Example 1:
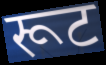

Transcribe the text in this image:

रूट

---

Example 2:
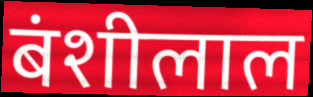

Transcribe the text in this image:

बंशीलाल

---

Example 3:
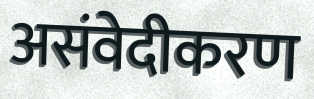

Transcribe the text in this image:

असंवेदीकरण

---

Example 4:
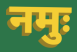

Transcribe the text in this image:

नमुः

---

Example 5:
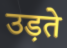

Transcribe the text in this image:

उड़ते